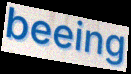
beeing